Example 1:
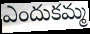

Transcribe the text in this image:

ఎందుకమ్మ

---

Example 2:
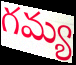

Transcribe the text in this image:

గమ్య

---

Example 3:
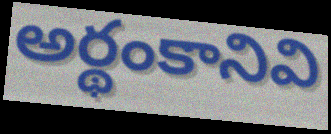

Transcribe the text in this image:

అర్థంకానివి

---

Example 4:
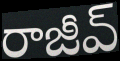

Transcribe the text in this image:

రాజీవ్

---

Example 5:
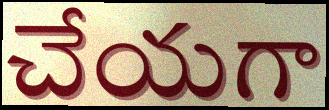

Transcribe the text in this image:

చేయగా